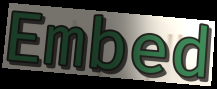
Embed